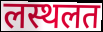
लस्थलत